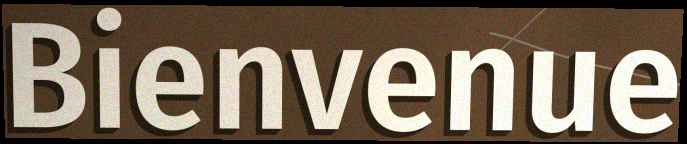
Bienvenue